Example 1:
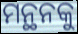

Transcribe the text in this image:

ମନ୍ଥନକୁ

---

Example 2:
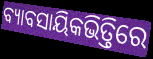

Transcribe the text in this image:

ବ୍ୟାବସାୟିକଭିତ୍ତିରେ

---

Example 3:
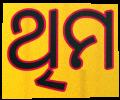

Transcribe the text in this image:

ଥିମ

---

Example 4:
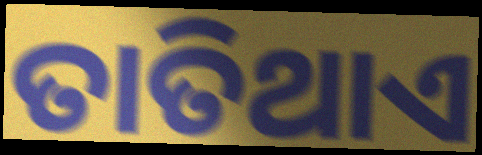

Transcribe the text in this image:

ତାତିଥାଏ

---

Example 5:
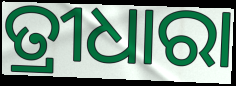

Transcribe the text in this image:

ତ୍ରୀଧାରା